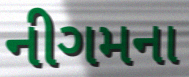
નીગમના